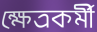
ক্ষেত্ৰকৰ্মী